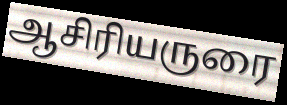
ஆசிரியருரை